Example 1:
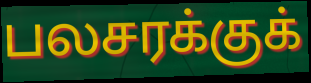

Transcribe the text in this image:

பலசரக்குக்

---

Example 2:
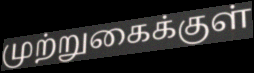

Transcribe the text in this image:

முற்றுகைக்குள்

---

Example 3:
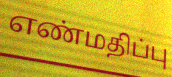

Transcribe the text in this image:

எண்மதிப்பு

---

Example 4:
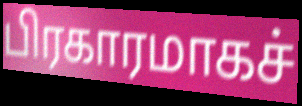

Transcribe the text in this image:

பிரகாரமாகச்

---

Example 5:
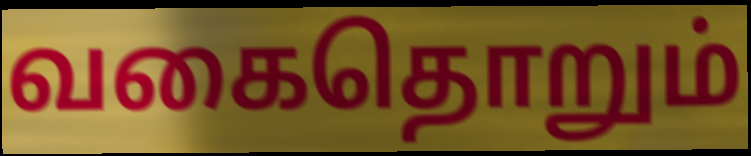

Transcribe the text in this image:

வகைதொறும்